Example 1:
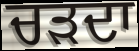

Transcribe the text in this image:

ਚੜਦਾ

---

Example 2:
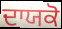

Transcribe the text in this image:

ਦਾਯਕੋ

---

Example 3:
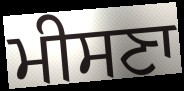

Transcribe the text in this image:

ਮੀਸਣਾ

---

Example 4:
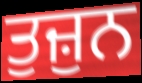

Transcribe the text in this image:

ਤੁਜ਼ੁਨ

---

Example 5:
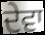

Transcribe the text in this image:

ਦੇਵਾ